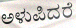
ಅಳುಪಿದರೆ